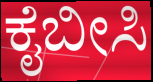
ಕೈಬೀಸಿ